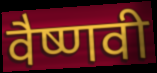
वैष्णवी